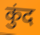
कुंद